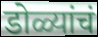
डोळ्यांचं